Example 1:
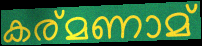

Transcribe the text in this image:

കര്മണാമ്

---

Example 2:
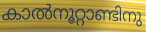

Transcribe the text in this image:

കാൽനൂറ്റാണ്ടിനു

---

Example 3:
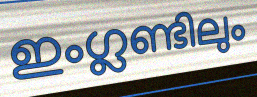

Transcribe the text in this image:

ഇംഗ്ലണ്ടിലും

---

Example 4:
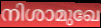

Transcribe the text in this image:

നിശാമുഖേ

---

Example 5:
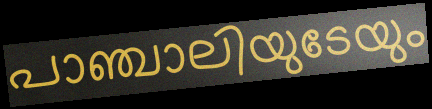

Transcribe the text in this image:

പാഞ്ചാലിയുടേയും